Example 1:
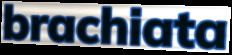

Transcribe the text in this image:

brachiata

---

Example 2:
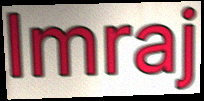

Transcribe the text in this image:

Imraj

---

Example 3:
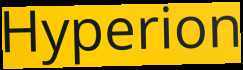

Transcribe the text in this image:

Hyperion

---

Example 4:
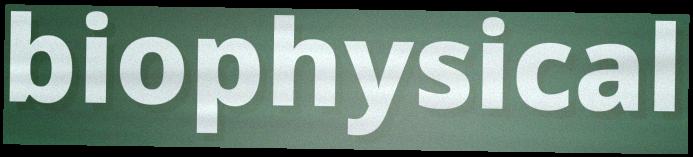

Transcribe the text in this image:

biophysical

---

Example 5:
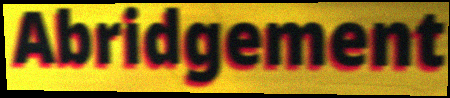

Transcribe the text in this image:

Abridgement